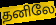
தனிலே